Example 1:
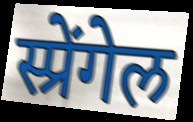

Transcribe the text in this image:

स्प्रेंगेल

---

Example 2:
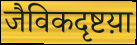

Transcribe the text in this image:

जैविकदृष्टय़ा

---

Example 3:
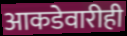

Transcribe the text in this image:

आकडेवारीही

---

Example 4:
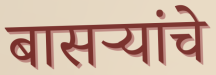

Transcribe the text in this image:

बासऱ्यांचे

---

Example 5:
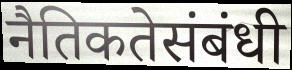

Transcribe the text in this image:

नैतिकतेसंबंधी